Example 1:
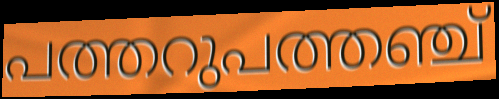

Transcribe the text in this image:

പത്തറുപത്തഞ്ച്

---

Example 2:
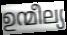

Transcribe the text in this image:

ഉന്മീല്യ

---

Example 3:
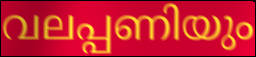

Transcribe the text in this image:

വലപ്പണിയും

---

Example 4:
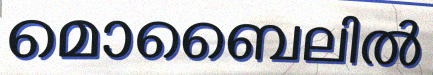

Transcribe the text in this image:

മൊബൈലിൽ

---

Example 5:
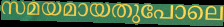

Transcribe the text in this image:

സമയമായതുപോലെ